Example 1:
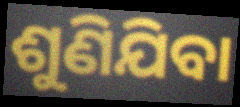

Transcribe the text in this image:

ଶୁଣିଯିବା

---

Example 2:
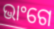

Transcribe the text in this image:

ଭାଂଗେ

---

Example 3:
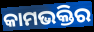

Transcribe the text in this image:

କାମଭକ୍ତିର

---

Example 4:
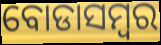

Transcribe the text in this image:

ବୋଡାସମ୍ବର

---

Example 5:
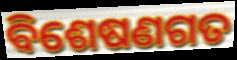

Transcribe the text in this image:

ବିଶେଷଣଗତ